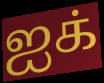
ஐக்